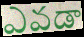
ఎవడా